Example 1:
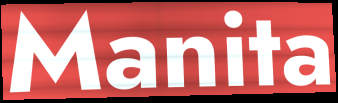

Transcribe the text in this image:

Manita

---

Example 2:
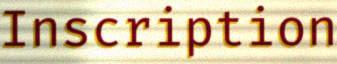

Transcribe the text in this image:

Inscription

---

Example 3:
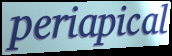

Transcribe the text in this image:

periapical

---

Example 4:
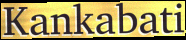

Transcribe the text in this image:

Kankabati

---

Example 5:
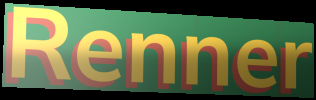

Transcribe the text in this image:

Renner